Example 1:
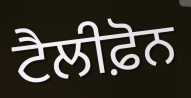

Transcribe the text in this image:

ਟੈਲੀਫ਼ੋਨ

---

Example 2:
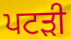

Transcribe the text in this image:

ਪਟੜੀ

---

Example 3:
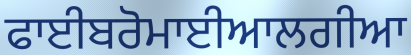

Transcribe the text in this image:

ਫਾਈਬਰੋਮਾਈਆਲਗੀਆ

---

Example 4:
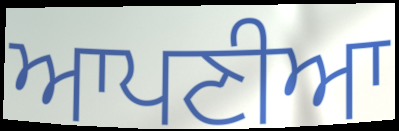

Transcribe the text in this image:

ਆਪਣੀਆ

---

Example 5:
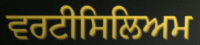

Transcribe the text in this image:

ਵਰਟੀਸਿਲਿਅਮ